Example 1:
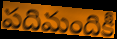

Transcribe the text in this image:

పదిమందికీ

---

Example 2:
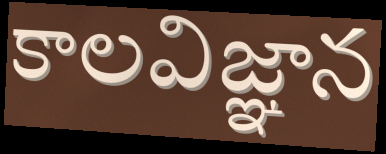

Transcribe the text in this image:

కాలవిజ్ఞాన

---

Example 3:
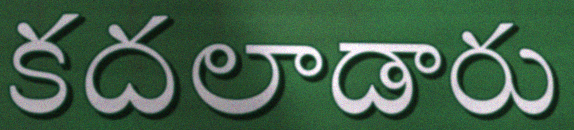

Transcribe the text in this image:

కదలాడారు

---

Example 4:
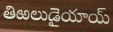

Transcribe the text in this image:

తిఱలుడైయాయ్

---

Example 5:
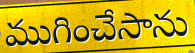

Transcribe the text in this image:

ముగించేసాను